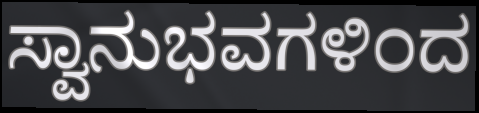
ಸ್ವಾನುಭವಗಳಿಂದ